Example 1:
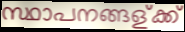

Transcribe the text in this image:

സ്ഥാപനങ്ങള്ക്ക്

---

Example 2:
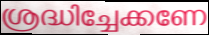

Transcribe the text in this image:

ശ്രദ്ധിച്ചേക്കണേ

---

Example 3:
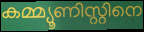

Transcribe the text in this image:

കമ്മ്യൂണിസ്റ്റിനെ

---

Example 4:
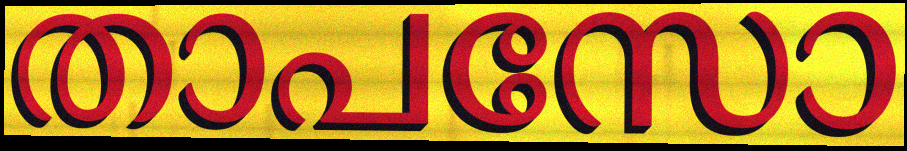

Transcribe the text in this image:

താപസോ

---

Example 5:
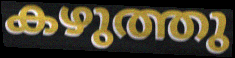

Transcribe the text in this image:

കഴുത്തു